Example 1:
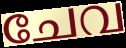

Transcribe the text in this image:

ചേവ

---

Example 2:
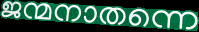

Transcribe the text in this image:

ജന്മനാതന്നെ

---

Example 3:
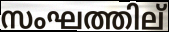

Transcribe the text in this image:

സംഘത്തില്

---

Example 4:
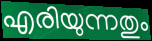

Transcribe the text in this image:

എരിയുന്നതും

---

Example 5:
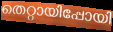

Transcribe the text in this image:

തെറ്റായിപ്പോയി